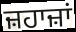
ਜ਼ਹਾਜ਼ਾਂ